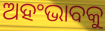
ଅହଂଭାବକୁ